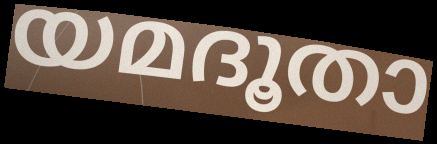
യമദൂതാ